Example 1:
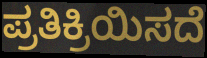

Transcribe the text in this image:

ಪ್ರತಿಕ್ರಿಯಿಸದೆ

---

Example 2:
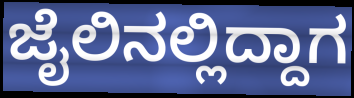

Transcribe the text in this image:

ಜೈಲಿನಲ್ಲಿದ್ದಾಗ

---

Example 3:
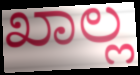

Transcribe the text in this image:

ಖಾಲ್ಲ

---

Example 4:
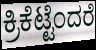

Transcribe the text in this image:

ಕ್ರಿಕೆಟ್ಟೆಂದರೆ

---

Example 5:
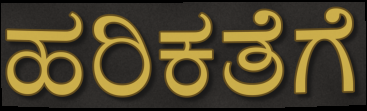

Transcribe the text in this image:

ಹರಿಕತೆಗೆ